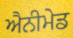
ਐਨੀਮੇਡ